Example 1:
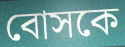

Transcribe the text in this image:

বোসকে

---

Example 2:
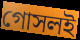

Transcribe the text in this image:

গোসলই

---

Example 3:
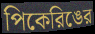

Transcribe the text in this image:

পিকেরিঙের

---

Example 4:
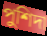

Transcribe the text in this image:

পুশিদা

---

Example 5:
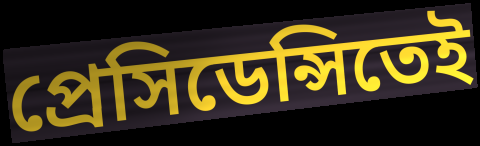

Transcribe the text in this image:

প্রেসিডেন্সিতেই